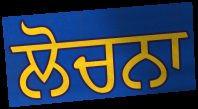
ਲੋਚਨਾ